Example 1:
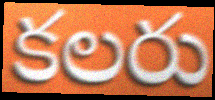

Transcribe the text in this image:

కలరు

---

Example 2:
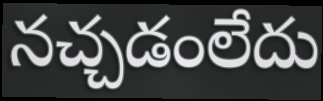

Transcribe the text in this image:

నచ్చడంలేదు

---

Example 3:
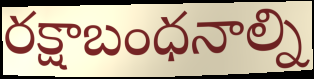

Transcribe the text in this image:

రక్షాబంధనాల్ని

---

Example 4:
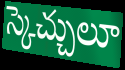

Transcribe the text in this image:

స్కెచ్చులూ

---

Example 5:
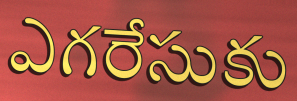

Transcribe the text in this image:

ఎగరేసుకు